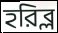
হরিব্ল